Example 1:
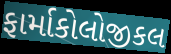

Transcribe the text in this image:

ફાર્માકોલોજીકલ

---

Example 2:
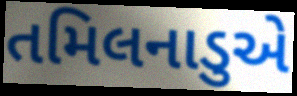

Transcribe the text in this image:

તમિલનાડુએ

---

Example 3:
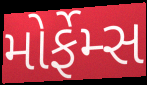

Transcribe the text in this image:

મોર્ફેમ્સ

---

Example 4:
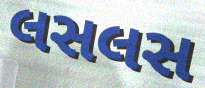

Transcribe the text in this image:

લસલસ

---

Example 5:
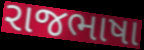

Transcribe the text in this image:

રાજભાષા